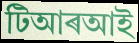
টিআৰআই